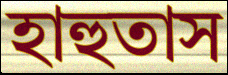
হাহুতাস